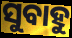
ସୁବାହୁ